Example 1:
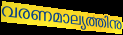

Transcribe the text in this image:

വരണമാല്യത്തിനു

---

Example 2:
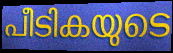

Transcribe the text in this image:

പീടികയുടെ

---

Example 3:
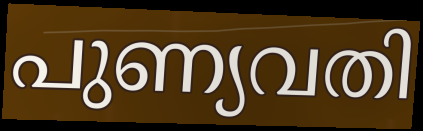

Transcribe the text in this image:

പുണ്യവതി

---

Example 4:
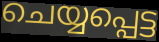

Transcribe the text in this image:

ചെയ്യപ്പെട്ട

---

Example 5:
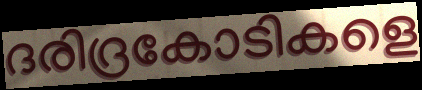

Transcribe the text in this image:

ദരിദ്രകോടികളെ